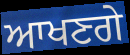
ਆਖਣਗੇ